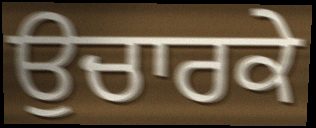
ਉਚਾਰਕੇ